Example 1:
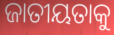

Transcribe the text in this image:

ଜାତୀୟତାକୁ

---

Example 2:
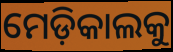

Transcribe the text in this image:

ମେଡ଼ିକାଲକୁ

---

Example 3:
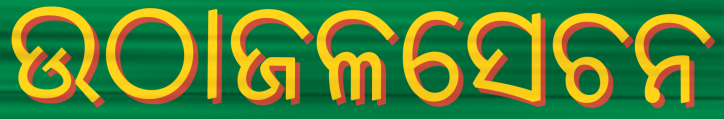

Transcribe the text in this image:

ଉଠାଜଳସେଚନ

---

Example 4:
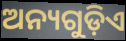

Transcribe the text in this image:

ଅନ୍ୟଗୁଡ଼ିଏ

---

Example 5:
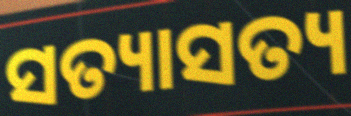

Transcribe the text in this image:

ସତ୍ୟାସତ୍ୟ